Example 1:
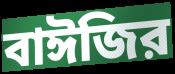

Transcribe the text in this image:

বাঈজির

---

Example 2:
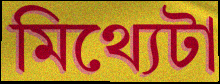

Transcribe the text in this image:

মিথ্যেটা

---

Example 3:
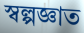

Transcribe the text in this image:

স্বল্পজ্ঞাত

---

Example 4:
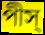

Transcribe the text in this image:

পীস্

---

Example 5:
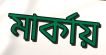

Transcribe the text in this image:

মার্কায়